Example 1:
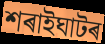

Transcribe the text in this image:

শৰাইঘাটৰ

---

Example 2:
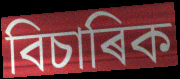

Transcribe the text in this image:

বিচাৰিক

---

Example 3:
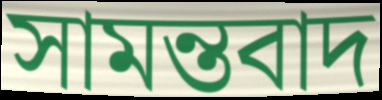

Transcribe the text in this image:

সামন্তবাদ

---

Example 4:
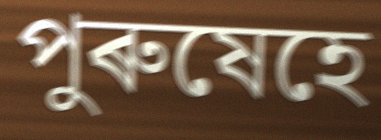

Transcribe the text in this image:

পুৰুষেহে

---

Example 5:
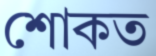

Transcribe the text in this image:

শোকত